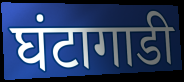
घंटागाडी